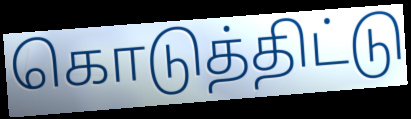
கொடுத்திட்டு